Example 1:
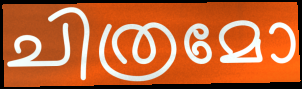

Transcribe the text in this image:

ചിത്രമോ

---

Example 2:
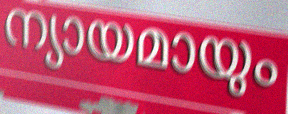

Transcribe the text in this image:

ന്യായമായും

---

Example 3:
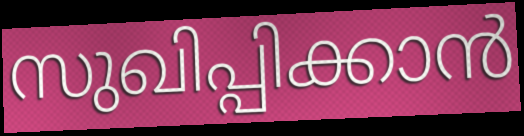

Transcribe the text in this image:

സുഖിപ്പിക്കാൻ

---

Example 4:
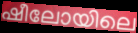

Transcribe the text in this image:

ഷീലോയിലെ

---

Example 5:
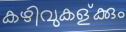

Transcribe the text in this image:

കഴിവുകള്ക്കും